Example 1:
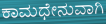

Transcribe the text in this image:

ಕಾಮಧೇನುವಾಗಿ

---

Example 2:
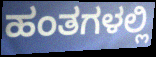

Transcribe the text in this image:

ಹಂತಗಳಲ್ಲಿ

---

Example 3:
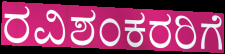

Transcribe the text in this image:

ರವಿಶಂಕರರಿಗೆ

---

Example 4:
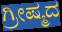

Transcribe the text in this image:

ಗ್ರೀಷ್ಮದ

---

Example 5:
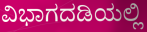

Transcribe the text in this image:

ವಿಭಾಗದಡಿಯಲ್ಲಿ